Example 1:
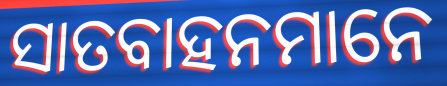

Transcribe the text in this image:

ସାତବାହନମାନେ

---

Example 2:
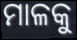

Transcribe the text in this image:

ମାଳକୁ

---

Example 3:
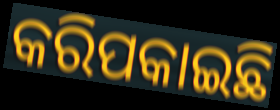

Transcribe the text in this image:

କରିପକାଇଛି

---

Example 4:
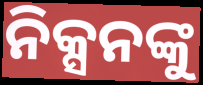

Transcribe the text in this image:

ନିକ୍ସନଙ୍କୁ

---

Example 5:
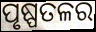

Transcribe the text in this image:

ପୃଷ୍ପତଳର